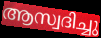
ആസ്വദിച്ചു